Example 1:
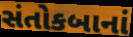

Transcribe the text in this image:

સંતોકબાનાં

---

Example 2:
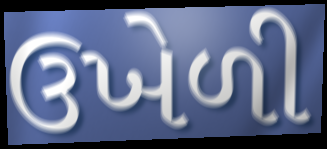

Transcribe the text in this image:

ઉખેળી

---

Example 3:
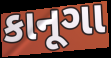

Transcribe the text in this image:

કાનૂગા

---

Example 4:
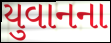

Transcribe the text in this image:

યુવાનના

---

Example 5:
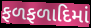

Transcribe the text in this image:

ફળફળાદિમાં